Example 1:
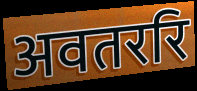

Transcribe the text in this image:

अवतररि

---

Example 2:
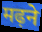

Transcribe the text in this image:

मढ़ने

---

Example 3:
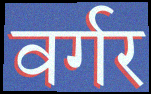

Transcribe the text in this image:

वर्गर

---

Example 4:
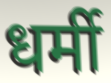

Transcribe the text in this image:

धर्मी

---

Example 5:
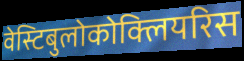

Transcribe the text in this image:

वेस्टिबुलोकोक्लियरिस